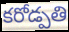
కరోడ్పతి